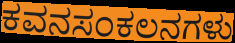
ಕವನಸಂಕಲನಗಳು